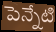
పెన్నేటి